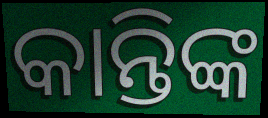
କାନ୍ତିଙ୍କ